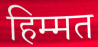
हिम्मत